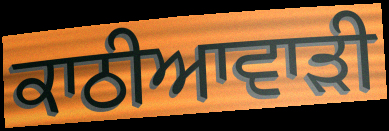
ਕਾਠੀਆਵਾੜੀ